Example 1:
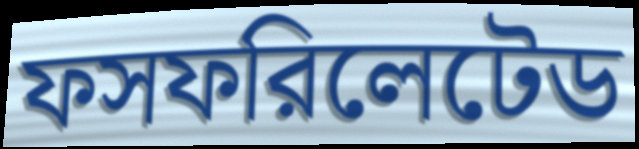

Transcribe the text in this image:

ফসফরিলেটেড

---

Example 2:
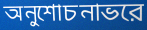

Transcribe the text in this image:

অনুশোচনাভরে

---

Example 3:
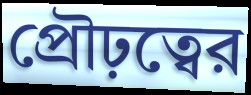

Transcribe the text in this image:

প্রৌঢ়ত্বের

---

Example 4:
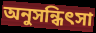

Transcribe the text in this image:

অনুসন্ধিৎসা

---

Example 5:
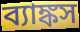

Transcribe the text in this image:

ব্যাঙ্কস